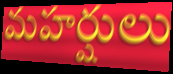
మహర్షులు